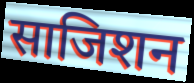
साजिशन